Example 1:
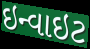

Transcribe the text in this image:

ઇન્વાઇટ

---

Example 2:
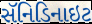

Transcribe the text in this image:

સૅનિડિનાઇટ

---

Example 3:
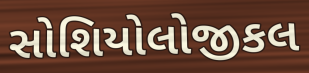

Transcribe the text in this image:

સોશિયોલોજીકલ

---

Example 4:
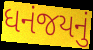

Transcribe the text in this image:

ધનંજયનું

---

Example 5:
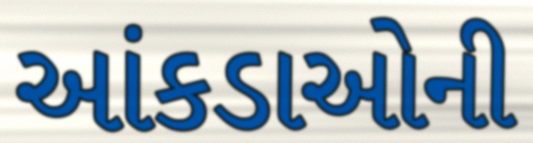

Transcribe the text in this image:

આંકડાઓની